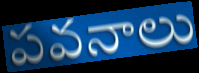
పవనాలు